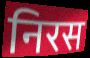
निरस